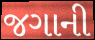
જગાની